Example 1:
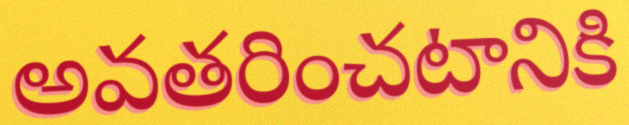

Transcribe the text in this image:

అవతరించటానికి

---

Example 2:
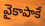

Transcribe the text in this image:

వైకాపాకే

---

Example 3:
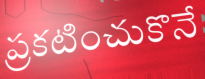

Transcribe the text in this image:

ప్రకటించుకొనే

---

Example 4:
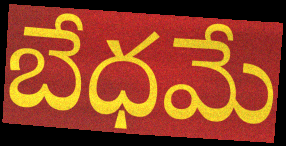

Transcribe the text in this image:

బేధమే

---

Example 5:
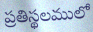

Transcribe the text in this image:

ప్రతిస్థలములో